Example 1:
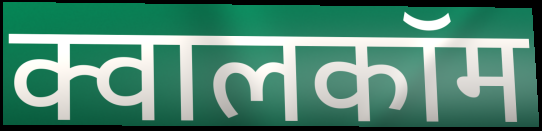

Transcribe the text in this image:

क्वालकॉम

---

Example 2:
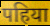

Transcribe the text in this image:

पहिया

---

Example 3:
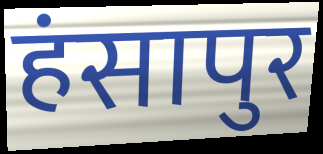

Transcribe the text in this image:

हंसापुर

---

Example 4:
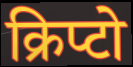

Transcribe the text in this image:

क्रिप्टो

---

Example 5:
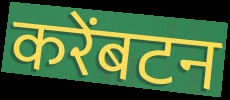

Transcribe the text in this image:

करेंबटन